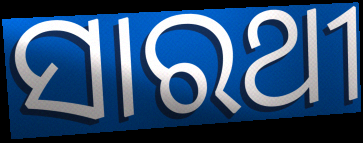
ସାରଥୀ